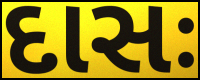
દાસઃ